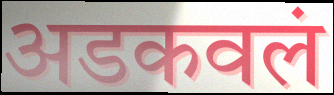
अडकवलं